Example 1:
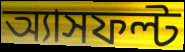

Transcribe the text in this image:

অ্যাসফল্ট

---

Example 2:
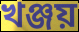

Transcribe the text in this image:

খঞ্জয়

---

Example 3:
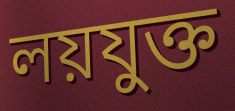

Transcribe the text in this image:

লয়যুক্ত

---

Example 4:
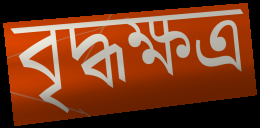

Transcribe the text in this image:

বৃদ্ধক্ষত্র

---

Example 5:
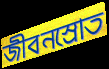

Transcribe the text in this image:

জীবনস্রোত